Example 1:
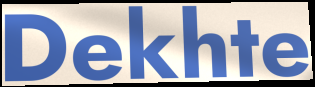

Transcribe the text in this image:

Dekhte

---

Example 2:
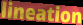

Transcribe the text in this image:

lineation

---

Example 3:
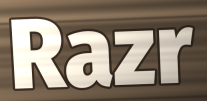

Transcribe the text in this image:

Razr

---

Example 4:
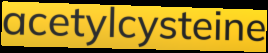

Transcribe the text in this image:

acetylcysteine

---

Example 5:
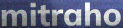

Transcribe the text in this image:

mitraho